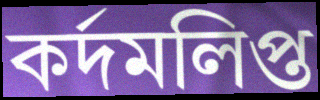
কর্দমলিপ্ত